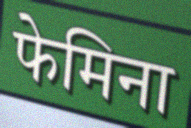
फेमिना